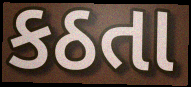
કઠતા